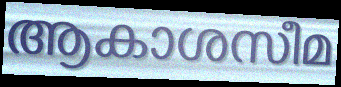
ആകാശസീമ